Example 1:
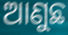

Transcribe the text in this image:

ଆଣୁଛ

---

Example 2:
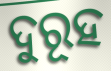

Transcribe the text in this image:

ଦୁରୂହ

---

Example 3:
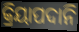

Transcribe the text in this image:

କ୍ରିୟାପଦାନି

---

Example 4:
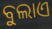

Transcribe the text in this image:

ବୁଲାଏ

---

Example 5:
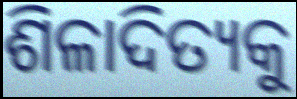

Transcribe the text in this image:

ଶିଳାଦିତ୍ୟକୁ